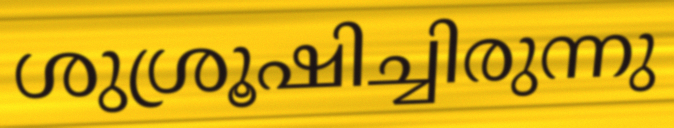
ശുശ്രൂഷിച്ചിരുന്നു